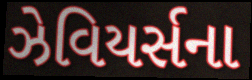
ઝેવિયર્સના